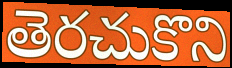
తెరచుకొని